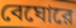
বেঘোরে